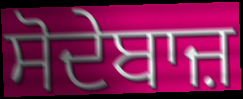
ਸੋਦੇਬਾਜ਼